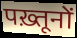
पख़्तूनों